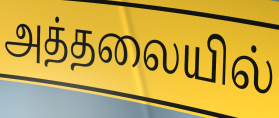
அத்தலையில்